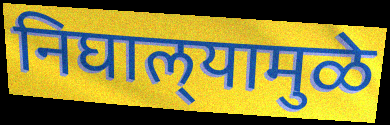
निघाल्यामुळे